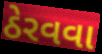
ઠેરવવા